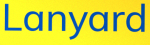
Lanyard